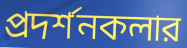
প্রদর্শনকলার